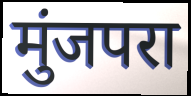
मुंजपरा